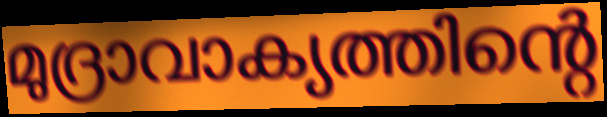
മുദ്രാവാക്യത്തിന്റെ